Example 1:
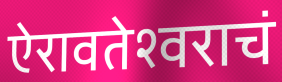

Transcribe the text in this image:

ऐरावतेश्वराचं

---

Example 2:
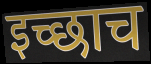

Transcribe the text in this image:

इच्छाच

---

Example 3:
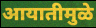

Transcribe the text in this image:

आयातीमुळे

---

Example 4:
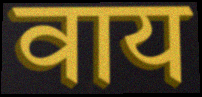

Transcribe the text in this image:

वाय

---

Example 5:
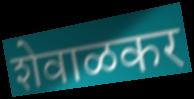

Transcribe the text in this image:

शेवाळकर